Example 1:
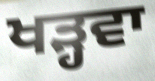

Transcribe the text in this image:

ਖੜ੍ਹਵਾ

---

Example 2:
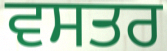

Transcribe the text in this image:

ਵਸਤਰ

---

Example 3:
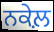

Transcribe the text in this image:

ਨਕੇਲ਼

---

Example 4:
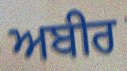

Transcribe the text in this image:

ਅਬੀਰ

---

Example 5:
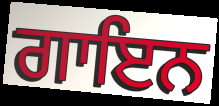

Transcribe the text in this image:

ਗਾਇਨ